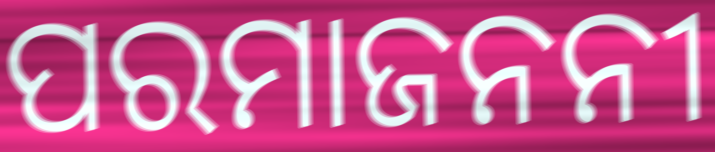
ପରମାଜନନୀ